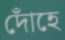
দোঁহে